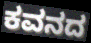
ಕವನದ